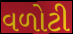
વળોટી